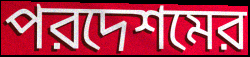
পরদেশমের